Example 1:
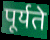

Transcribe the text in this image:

पूर्यते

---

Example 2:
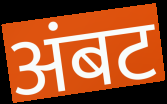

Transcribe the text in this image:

अंबट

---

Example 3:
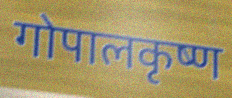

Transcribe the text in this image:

गोपालकृष्ण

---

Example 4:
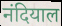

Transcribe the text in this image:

नंदियाल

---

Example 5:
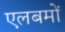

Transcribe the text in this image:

एलबमों